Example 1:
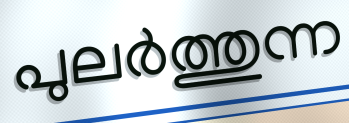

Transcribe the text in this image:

പുലർത്തുന്ന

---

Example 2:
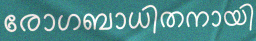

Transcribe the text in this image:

രോഗബാധിതനായി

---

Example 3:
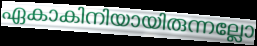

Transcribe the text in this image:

ഏകാകിനിയായിരുന്നല്ലോ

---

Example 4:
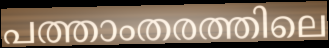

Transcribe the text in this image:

പത്താംതരത്തിലെ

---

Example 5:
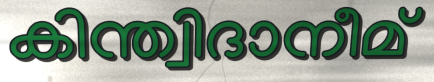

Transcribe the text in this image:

കിന്ത്വിദാനീമ്